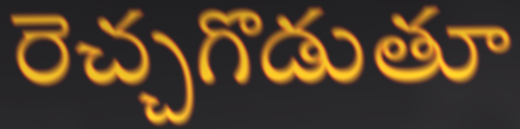
రెచ్చగొడుతూ